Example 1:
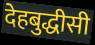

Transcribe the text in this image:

देहबुद्धीसी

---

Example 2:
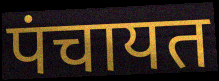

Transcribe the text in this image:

पंचायत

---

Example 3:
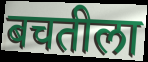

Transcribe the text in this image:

बचतीला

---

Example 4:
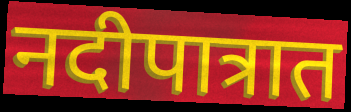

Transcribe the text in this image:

नदीपात्रात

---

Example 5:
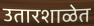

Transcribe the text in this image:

उतारशाळेत